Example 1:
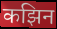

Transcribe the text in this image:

कझिन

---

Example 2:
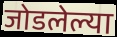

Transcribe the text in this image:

जोडलेल्या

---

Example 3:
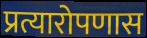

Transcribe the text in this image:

प्रत्यारोपणास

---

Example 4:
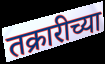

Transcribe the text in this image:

तक्रारीच्या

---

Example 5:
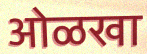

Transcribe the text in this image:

ओळखा